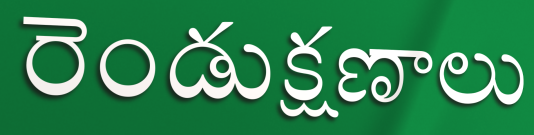
రెండుక్షణాలు